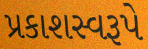
પ્રકાશસ્વરૂપે